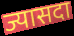
ज्यासदा